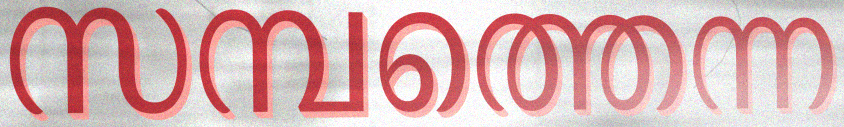
സമ്പത്തെന്ന